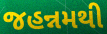
જહન્નમથી